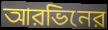
আরভিনের